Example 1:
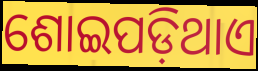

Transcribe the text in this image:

ଶୋଇପଡ଼ିଥାଏ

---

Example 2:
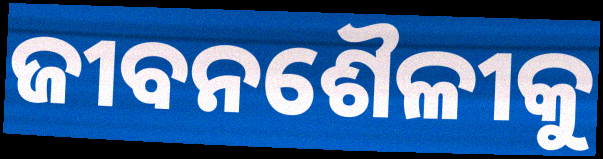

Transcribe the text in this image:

ଜୀବନଶୈଳୀକୁ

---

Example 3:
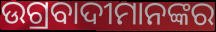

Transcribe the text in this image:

ଉଗ୍ରବାଦୀମାନଙ୍କର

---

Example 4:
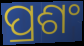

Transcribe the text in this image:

ପ୍ରଶଂ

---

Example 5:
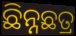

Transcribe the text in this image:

ଛିନ୍ନଛତ୍ର